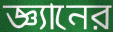
জ্ঞ্যানের